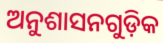
ଅନୁଶାସନଗୁଡ଼ିକ